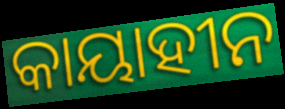
କାୟାହୀନ